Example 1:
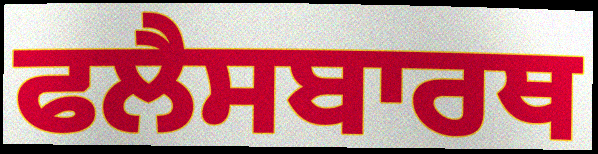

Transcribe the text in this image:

ਫਲੈਸਬਾਰਥ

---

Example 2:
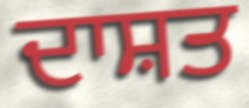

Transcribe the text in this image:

ਦਾਸ਼ਤ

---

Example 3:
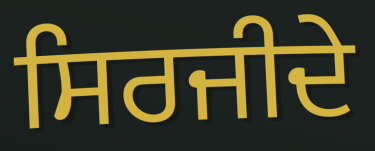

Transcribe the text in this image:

ਸਿਰਜੀਦੇ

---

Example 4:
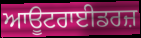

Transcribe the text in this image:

ਆਊਟਰਾਈਡਰਜ਼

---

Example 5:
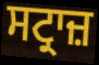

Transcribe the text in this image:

ਸਟ੍ਰਾਜ਼